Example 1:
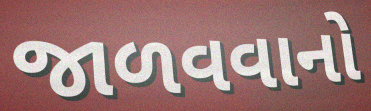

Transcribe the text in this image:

જાળવવાનો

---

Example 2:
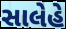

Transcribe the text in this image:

સાલેહે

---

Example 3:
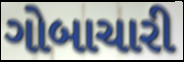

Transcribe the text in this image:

ગોબાચારી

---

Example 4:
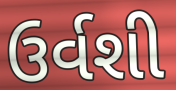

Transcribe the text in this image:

ઉર્વશી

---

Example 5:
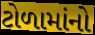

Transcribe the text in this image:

ટોળામાંનો